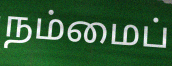
நம்மைப்